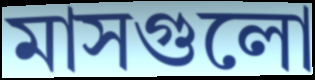
মাসগুলো